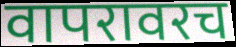
वापरावरच